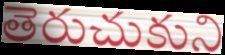
తెరుచుకుని